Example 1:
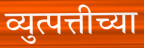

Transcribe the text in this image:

व्युत्पत्तीच्या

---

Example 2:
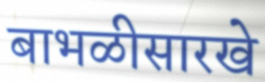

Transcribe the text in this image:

बाभळीसारखे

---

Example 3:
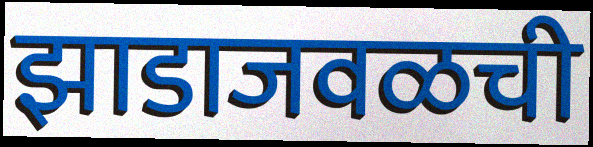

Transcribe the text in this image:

झाडाजवळची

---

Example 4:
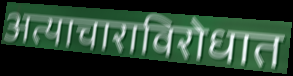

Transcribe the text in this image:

अत्याचाराविरोधात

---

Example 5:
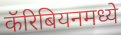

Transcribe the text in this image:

कॅरिबियनमध्ये